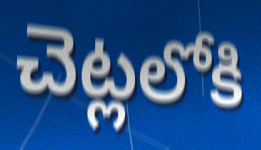
చెట్లలోకి